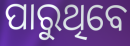
ପାରୁଥିବେ